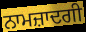
ਨਾਮਜ਼ਾਦਗੀ